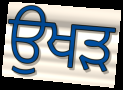
ਉਖੜ